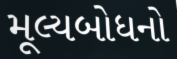
મૂલ્યબોધનો